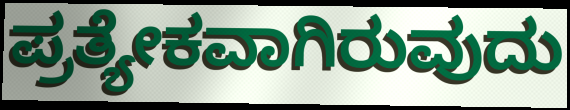
ಪ್ರತ್ಯೇಕವಾಗಿರುವುದು